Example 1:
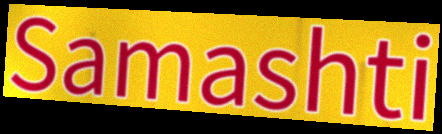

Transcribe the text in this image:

Samashti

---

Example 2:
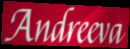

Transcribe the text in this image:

Andreeva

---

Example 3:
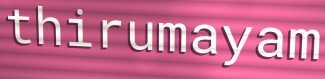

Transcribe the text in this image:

thirumayam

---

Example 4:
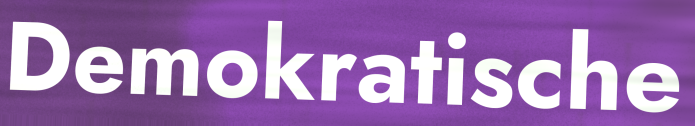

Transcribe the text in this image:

Demokratische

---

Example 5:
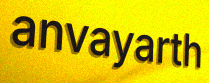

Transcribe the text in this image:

anvayarth